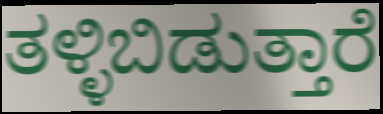
ತಳ್ಳಿಬಿಡುತ್ತಾರೆ